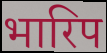
भारिप